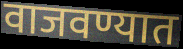
वाजवण्यात